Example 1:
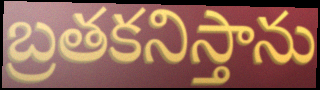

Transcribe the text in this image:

బ్రతకనిస్తాను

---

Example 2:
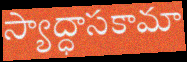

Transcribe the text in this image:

స్యాద్ధాసకామా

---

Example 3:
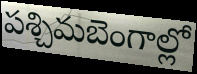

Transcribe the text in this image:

పశ్చిమబెంగాల్లో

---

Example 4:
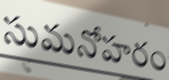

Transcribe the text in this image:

సుమనోహరం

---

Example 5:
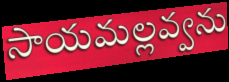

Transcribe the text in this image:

సాయమల్లవ్వను